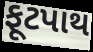
ફૂટપાથ